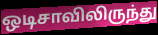
ஒடிசாவிலிருந்து